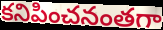
కనిపించనంతగా